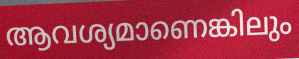
ആവശ്യമാണെങ്കിലും